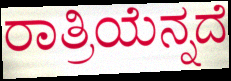
ರಾತ್ರಿಯೆನ್ನದೆ